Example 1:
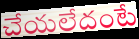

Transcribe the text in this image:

చేయలేదంటే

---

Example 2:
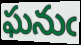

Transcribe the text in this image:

ఘనుఁ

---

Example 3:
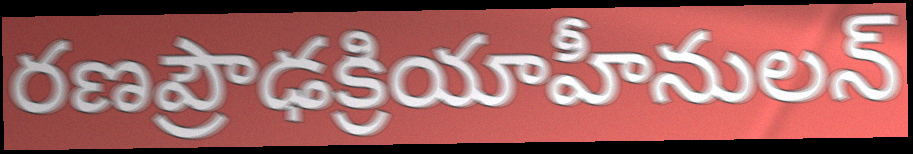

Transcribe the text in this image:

రణప్రౌఢక్రియాహీనులన్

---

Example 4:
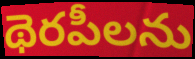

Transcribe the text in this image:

థెరపీలను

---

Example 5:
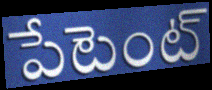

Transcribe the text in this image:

పేటెంట్